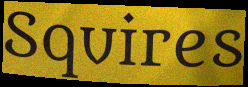
Squires